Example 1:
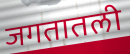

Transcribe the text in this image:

जगतातली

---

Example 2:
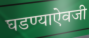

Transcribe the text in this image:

घडण्याऐवजी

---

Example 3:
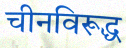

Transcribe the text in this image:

चीनविरूद्ध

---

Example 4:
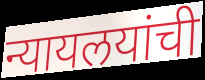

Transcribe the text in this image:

न्यायलयांची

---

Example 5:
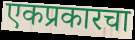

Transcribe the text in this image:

एकप्रकारचा